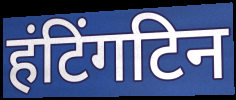
हंटिंगटिन